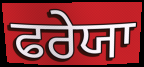
ਫਰੇਯਾ